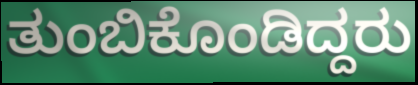
ತುಂಬಿಕೊಂಡಿದ್ದರು